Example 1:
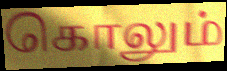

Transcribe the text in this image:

கொலும்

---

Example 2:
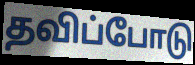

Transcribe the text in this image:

தவிப்போடு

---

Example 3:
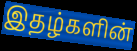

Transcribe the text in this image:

இதழ்களின்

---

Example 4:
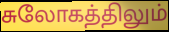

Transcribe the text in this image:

சுலோகத்திலும்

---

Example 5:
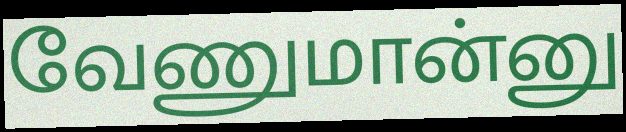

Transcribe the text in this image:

வேணுமான்னு